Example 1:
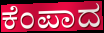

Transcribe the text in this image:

ಕೆಂಪಾದ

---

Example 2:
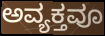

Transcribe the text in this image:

ಅವ್ಯಕ್ತವೂ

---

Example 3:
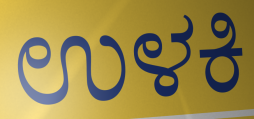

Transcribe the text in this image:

ಉಳಕಿ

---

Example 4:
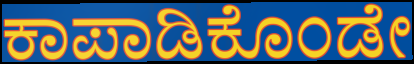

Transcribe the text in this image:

ಕಾಪಾಡಿಕೊಂಡೇ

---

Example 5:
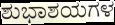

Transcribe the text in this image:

ಶುಭಾಶಯಗಳ